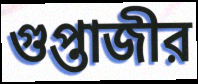
গুপ্তাজীর